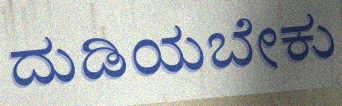
ದುಡಿಯಬೇಕು